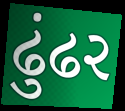
ઢુંઢર